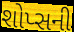
શોપ્સની